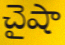
చైషా